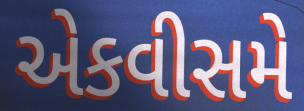
એકવીસમે